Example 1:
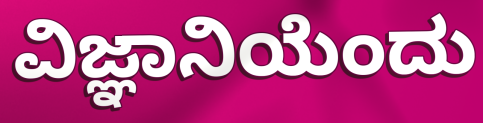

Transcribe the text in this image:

ವಿಜ್ಞಾನಿಯೆಂದು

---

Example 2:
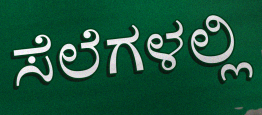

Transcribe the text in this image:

ಸೆಲೆಗಳಲ್ಲಿ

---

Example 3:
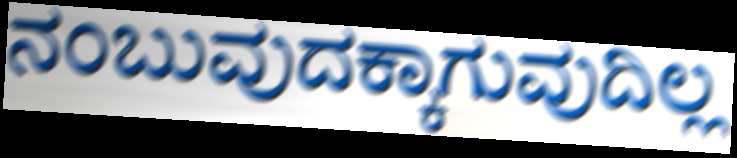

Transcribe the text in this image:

ನಂಬುವುದಕ್ಕಾಗುವುದಿಲ್ಲ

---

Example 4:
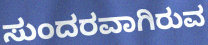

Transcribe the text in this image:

ಸುಂದರವಾಗಿರುವ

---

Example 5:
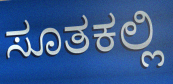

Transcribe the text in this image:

ಸೂತಕಲ್ಲಿ